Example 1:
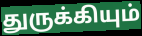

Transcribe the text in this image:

துருக்கியும்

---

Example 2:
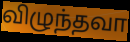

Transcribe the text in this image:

விழுந்தவா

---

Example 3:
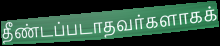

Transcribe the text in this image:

தீண்டப்படாதவர்களாகக்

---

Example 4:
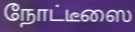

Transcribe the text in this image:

நோட்டீஸை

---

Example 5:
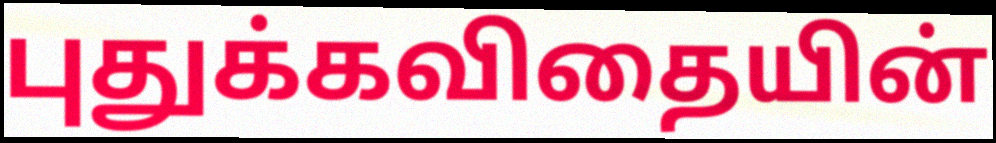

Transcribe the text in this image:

புதுக்கவிதையின்